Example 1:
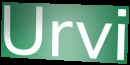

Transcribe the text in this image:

Urvi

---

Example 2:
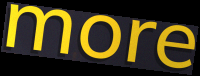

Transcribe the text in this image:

more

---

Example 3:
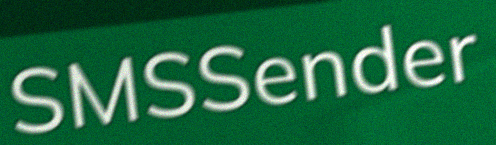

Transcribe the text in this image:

SMSSender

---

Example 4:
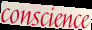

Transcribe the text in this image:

conscience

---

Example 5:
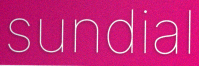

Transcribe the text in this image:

sundial